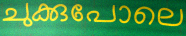
ചുക്കുപോലെ